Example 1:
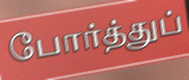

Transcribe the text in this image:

போர்த்துப்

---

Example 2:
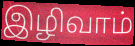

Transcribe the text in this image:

இழிவாம்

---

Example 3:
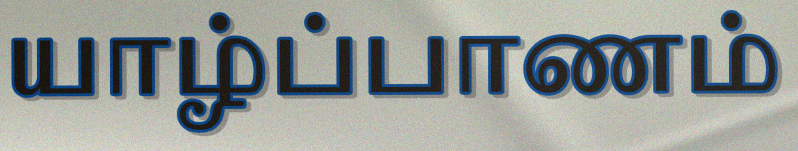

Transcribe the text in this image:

யாழ்ப்பாணம்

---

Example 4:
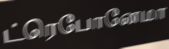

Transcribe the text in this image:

ட்ரெபோனேமா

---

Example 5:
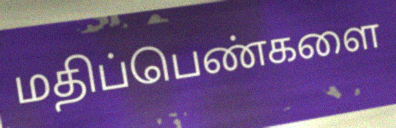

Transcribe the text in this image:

மதிப்பெண்களை